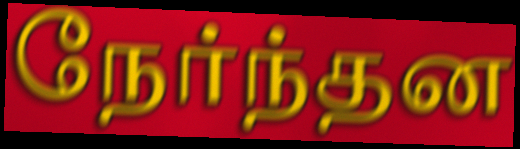
நேர்ந்தன